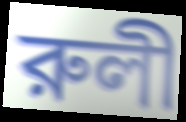
রুলী